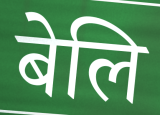
बेलि